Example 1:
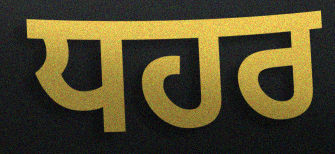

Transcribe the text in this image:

ਧਹਰ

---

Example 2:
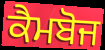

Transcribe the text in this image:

ਕੈਮਬੋਜ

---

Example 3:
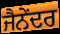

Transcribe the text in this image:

ਜੈਨੇਂਦਰ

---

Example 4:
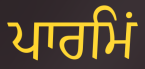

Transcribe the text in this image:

ਪਾਰਮਿਂ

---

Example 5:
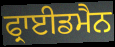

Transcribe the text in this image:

ਫ੍ਰਾਈਡਮੈਨ